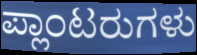
ಪ್ಲಾಂಟರುಗಳು